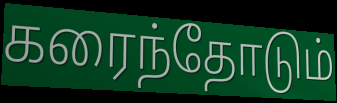
கரைந்தோடும்